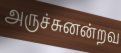
அருச்சுனன்றவ